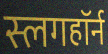
स्लगहॉर्न